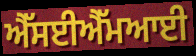
ਐੱਸਈਐੱਮਆਈ